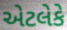
એટલેકે